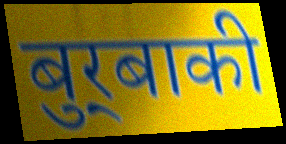
बुर्बाकी